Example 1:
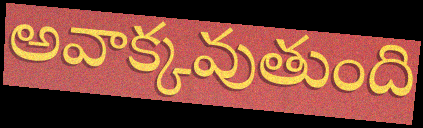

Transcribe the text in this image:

అవాక్కవుతుంది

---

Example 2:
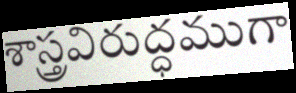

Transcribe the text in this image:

శాస్త్రవిరుద్ధముగా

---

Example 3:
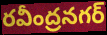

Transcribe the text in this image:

రవీంద్రనగర్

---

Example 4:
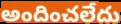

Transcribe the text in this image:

అందించలేదు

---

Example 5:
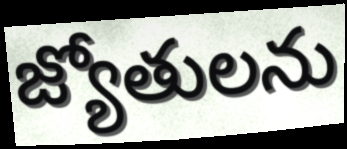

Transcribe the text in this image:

జ్యోతులను